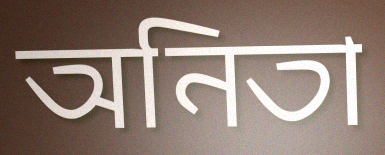
অনিতা